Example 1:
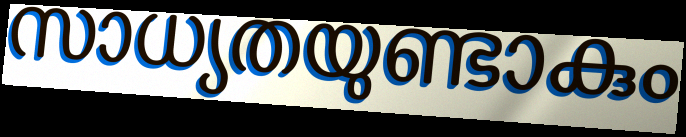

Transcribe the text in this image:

സാധ്യതയുണ്ടാകും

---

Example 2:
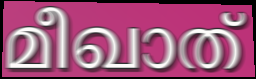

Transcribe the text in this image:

മീഖാത്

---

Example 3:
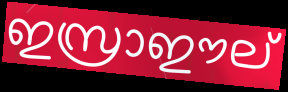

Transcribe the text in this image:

ഇസ്രാഈല്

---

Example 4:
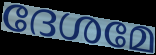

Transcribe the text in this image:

ദേശമേ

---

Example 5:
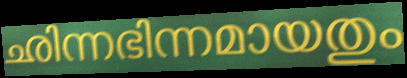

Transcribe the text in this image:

ഛിന്നഭിന്നമായതും